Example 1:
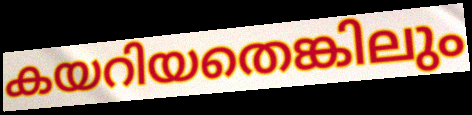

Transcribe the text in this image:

കയറിയതെങ്കിലും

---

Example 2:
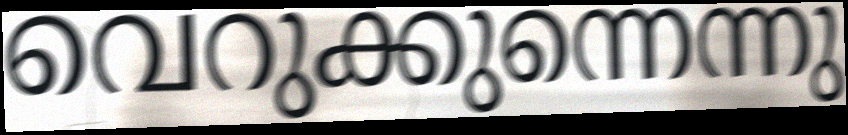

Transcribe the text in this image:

വെറുക്കുന്നെന്നു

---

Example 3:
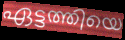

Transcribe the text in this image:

ഏട്ടത്തിയെ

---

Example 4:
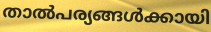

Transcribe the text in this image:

താൽപര്യങ്ങൾക്കായി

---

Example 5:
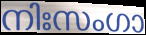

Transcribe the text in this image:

നിഃസംഗാ